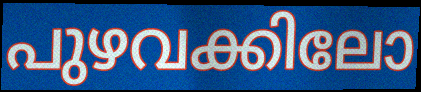
പുഴവക്കിലോ